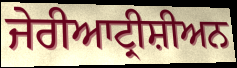
ਜੇਰੀਆਟ੍ਰੀਸ਼ੀਅਨ